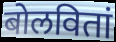
बोलवितां